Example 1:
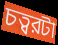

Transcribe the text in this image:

চত্বরটা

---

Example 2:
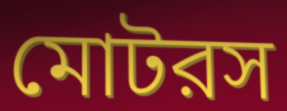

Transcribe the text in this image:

মোটরস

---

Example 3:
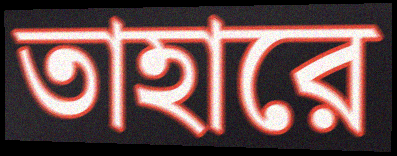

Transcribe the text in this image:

তাহারে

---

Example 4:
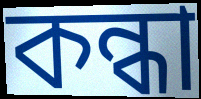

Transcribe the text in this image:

কন্ধা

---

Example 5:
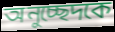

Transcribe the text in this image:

অনুচ্ছেদকে